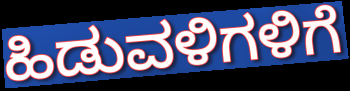
ಹಿಡುವಳಿಗಳಿಗೆ